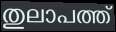
തുലാപത്ത്